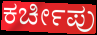
ಕರ್ಚೀಪು